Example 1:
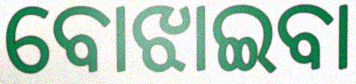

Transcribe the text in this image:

ବୋଝାଇବା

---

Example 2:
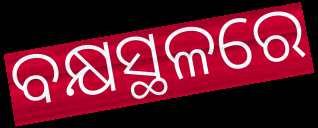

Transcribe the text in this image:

ବକ୍ଷସ୍ଥଳରେ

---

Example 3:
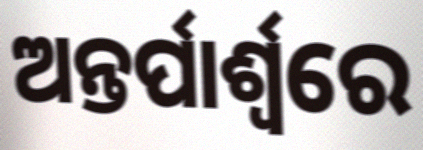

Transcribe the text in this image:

ଅନ୍ତର୍ପାର୍ଶ୍ୱରେ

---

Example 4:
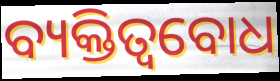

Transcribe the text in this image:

ବ୍ୟକ୍ତିତ୍ୱବୋଧ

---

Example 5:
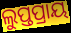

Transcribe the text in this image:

ଲୁପ୍ତପ୍ରାୟ